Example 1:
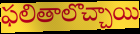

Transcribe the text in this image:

ఫలితాలొచ్చాయి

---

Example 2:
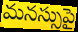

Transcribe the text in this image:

మనస్సుపై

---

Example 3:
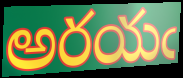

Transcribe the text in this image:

అరయఁ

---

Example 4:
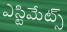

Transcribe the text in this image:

ఎస్టిమేట్స్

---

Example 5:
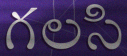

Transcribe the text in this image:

గలసి